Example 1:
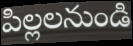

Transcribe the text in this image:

పిల్లలనుండి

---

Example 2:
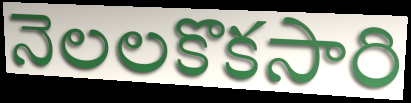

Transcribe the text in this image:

నెలలకొకసారి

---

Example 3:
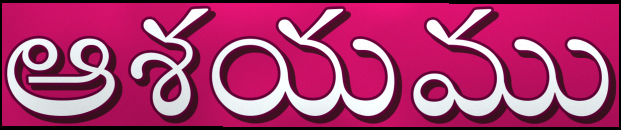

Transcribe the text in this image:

ఆశయము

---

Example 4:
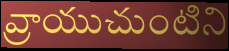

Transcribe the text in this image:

వ్రాయుచుంటిని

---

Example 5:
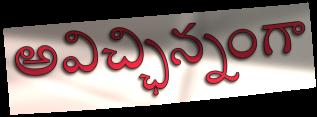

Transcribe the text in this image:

అవిచ్ఛిన్నంగా